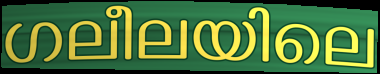
ഗലീലയിലെ